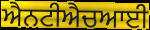
ਐਨਟੀਐਚਆਈ